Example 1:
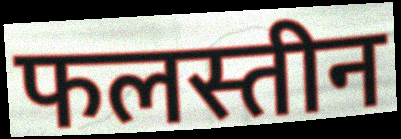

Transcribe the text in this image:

फलस्तीन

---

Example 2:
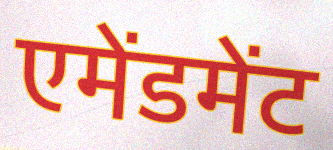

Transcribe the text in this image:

एमेंडमेंट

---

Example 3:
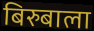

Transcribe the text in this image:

बिरुबाला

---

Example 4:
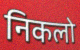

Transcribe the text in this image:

निकलो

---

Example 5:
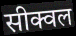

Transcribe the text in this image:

सीक्वल